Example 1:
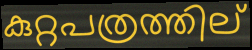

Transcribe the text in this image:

കുറ്റപത്രത്തില്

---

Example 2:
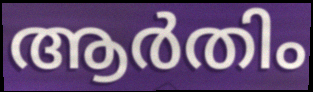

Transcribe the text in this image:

ആർതിം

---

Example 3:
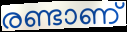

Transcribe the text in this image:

രണ്ടാണ്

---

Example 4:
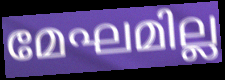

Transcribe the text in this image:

മേഘമില്ല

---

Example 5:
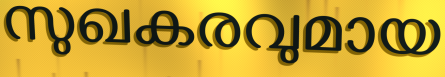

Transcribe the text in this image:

സുഖകരവുമായ